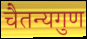
चैतन्यगुण